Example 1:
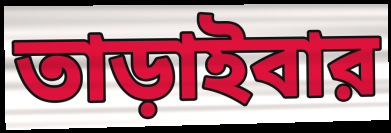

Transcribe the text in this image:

তাড়াইবার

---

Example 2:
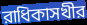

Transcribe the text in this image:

রাধিকাসখীর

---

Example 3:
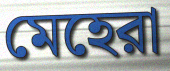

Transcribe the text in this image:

মেহেরা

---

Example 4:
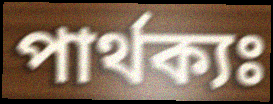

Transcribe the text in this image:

পার্থক্যঃ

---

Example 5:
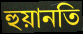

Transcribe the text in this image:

হুয়ানতি